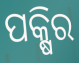
ପକ୍ଷିର